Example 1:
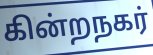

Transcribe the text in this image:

கின்றநகர்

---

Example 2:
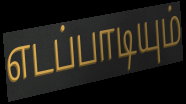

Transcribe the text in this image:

எடப்பாடியும்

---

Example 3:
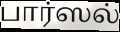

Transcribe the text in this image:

பார்ஸல்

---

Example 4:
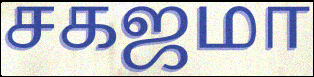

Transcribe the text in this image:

சகஜமா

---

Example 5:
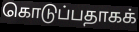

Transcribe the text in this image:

கொடுப்பதாகக்